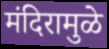
मंदिरामुळे